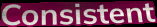
Consistent